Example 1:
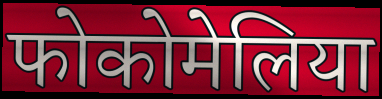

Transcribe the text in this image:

फोकोमेलिया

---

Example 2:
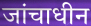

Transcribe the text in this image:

जांचाधीन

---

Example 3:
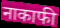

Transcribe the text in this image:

नाकाफी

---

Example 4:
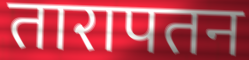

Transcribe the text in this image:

तारापतन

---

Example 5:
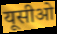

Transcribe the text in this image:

यूसीओ